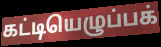
கட்டியெழுப்பக்